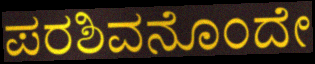
ಪರಶಿವನೊಂದೇ